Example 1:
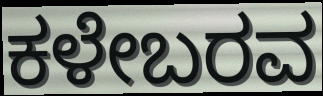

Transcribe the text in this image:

ಕಳೇಬರವ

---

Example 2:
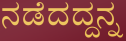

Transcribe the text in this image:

ನಡೆದದ್ದನ್ನ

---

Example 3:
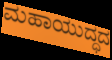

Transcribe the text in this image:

ಮಹಾಯುದ್ಧದ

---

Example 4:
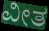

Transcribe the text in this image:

ವೀತ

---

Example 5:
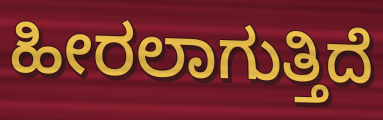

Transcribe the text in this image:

ಹೀರಲಾಗುತ್ತಿದೆ